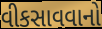
વીકસાવવાનો